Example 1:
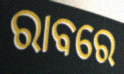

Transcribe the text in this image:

ରାବରେ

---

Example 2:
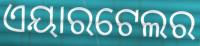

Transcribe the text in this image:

ଏୟାରଟେଲର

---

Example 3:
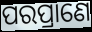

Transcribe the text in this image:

ପରପ୍ରାଣେ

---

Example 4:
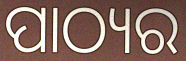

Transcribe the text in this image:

ପାଠ୍ୟର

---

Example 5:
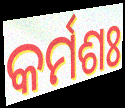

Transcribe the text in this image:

କର୍ମଶଃ